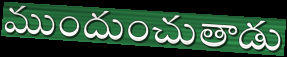
ముందుంచుతాడు